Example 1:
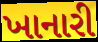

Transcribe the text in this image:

ખાનારી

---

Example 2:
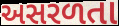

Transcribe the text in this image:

અસરળતા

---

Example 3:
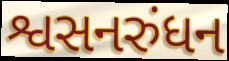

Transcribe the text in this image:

શ્વસનરુંધન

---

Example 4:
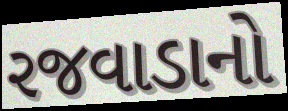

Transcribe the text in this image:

રજવાડાનો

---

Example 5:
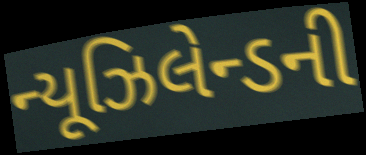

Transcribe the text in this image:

ન્યૂઝિલેન્ડની